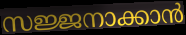
സജ്ജനാക്കാൻ